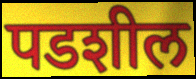
पडशील